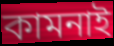
কামনাই